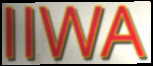
IIWA